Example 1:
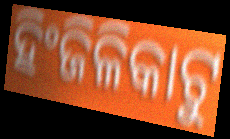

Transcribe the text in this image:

ହିଂଜିଳିକାଟୁ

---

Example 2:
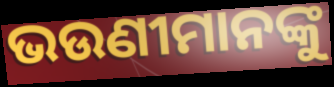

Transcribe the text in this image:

ଭଉଣୀମାନଙ୍କୁ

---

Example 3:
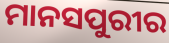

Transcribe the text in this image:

ମାନସପୁରୀର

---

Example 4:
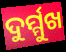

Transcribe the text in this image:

ଦୁର୍ମ୍ମୁଖ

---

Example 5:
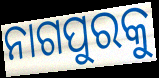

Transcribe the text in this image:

ନାଗପୁରକୁ